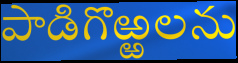
పాడిగొఱ్ఱలను